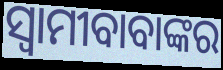
ସ୍ଵାମୀବାବାଙ୍କର